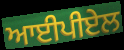
ਆਈਪੀਏਲ